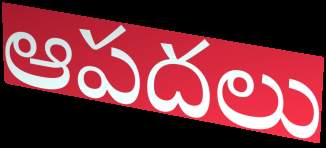
ఆపదలు